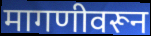
मागणीवरून